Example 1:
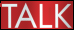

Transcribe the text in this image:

TALK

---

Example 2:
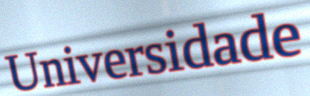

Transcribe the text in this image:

Universidade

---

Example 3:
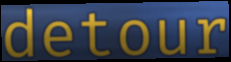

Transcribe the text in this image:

detour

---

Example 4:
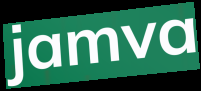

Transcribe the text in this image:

jamva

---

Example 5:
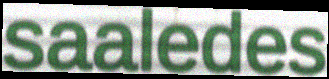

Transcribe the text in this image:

saaledes